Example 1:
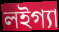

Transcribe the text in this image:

লইগ্যা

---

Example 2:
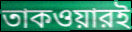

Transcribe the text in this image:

তাকওয়ারই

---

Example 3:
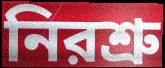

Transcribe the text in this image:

নিরশ্রু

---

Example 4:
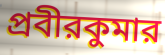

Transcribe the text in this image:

প্রবীরকুমার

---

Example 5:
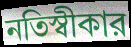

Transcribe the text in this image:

নতিস্বীকার